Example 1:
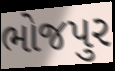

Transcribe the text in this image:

ભોજપુર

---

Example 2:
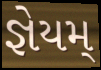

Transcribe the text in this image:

જ્ઞેયમ્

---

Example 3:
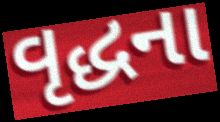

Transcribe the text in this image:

વૃદ્ધના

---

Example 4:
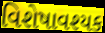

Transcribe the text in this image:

વિશેષાવશ્યક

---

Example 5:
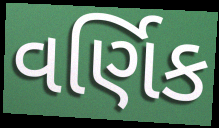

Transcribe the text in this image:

વર્ણિક